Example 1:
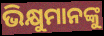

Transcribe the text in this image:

ଭିକ୍ଷୁମାନଙ୍କୁ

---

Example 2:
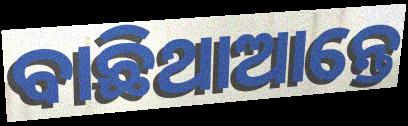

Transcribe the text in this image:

ବାଛିଥାଆନ୍ତେ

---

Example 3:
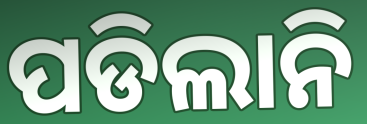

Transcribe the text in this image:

ପଡିଲାନି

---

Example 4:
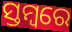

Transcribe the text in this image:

ସ୍ତମ୍ବରେ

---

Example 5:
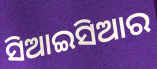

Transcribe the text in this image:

ସିଆଇସିଆର